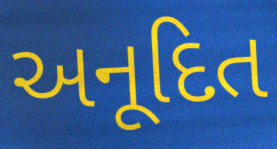
અનૂદિત